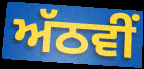
ਅੱਠਵੀਂ